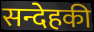
सन्देहकी